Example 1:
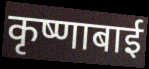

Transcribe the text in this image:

कृष्णाबाई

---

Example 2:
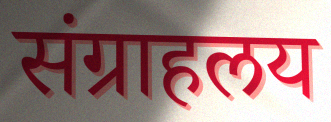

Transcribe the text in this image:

संग्राहलय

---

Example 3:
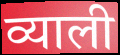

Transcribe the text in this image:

व्याली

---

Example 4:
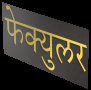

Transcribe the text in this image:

फेक्युलर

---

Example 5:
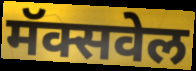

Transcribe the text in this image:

मॅक्सवेल